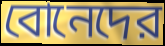
বোনেদের